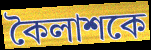
কৈলাশকে